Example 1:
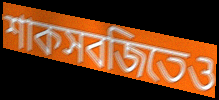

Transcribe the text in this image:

শাকসবজিতেও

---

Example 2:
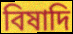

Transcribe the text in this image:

বিষাদি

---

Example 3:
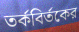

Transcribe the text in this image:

তর্কবির্তকের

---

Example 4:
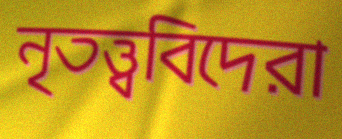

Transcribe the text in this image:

নৃতত্ত্ববিদেরা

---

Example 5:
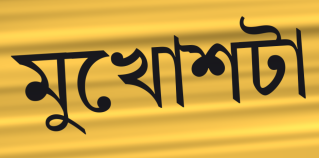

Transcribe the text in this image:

মুখোশটা